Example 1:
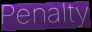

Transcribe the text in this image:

Penalty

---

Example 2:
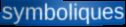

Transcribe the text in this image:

symboliques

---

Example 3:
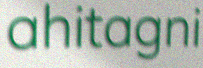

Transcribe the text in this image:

ahitagni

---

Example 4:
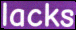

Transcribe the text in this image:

lacks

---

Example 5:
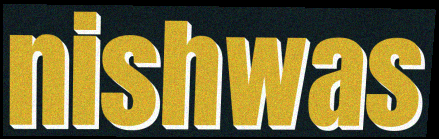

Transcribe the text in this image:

nishwas